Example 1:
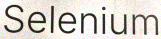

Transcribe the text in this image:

Selenium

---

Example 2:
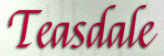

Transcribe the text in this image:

Teasdale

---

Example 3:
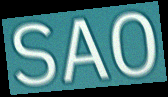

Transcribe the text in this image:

SAO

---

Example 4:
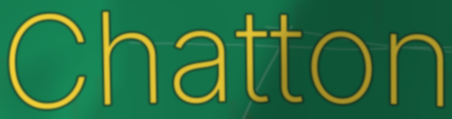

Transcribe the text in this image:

Chatton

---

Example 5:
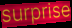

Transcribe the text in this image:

surprise